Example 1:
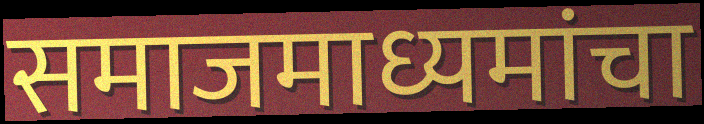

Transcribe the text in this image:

समाजमाध्यमांचा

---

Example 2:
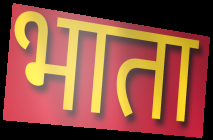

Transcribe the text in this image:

भाता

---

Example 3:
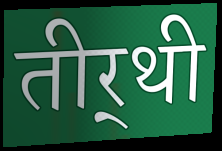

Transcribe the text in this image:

तीर्थी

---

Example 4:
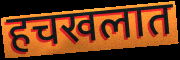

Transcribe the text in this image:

हचखलात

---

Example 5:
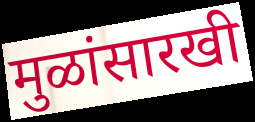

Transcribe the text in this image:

मुळांसारखी